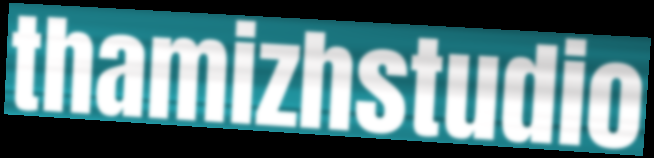
thamizhstudio